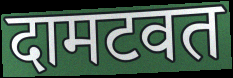
दामटवत